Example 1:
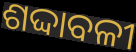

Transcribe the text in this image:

ଶଦ୍ଦାବଳୀ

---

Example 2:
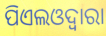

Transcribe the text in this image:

ପିଏଲଓଦ୍ୱାରା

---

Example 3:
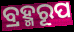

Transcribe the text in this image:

ବ୍ରହ୍ମରୂପ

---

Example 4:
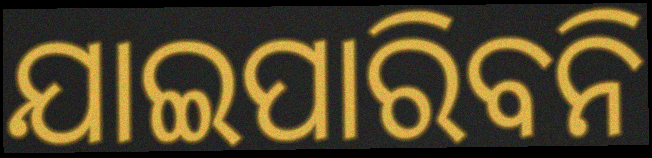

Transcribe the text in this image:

ଯାଇପାରିବନି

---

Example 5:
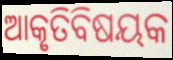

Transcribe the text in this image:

ଆକୃତିବିଷୟକ